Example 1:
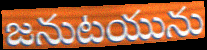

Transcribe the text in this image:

జనుటయును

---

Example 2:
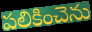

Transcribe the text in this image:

పలికించెను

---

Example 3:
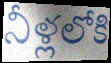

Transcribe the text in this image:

నీళ్లలోకి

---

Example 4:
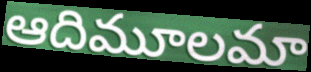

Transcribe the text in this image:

ఆదిమూలమా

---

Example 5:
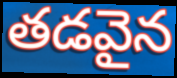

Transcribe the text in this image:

తడవైన